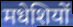
मधेशियों